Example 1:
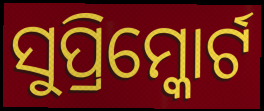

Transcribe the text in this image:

ସୁପ୍ରିମ୍କୋର୍ଟ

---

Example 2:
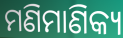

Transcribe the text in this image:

ମଣିମାଣିକ୍ୟ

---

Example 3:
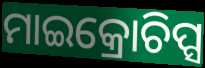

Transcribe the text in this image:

ମାଇକ୍ରୋଚିପ୍ସ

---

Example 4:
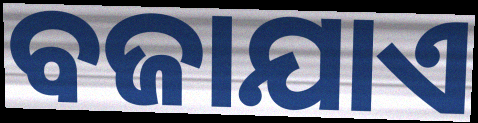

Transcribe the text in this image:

ବଜାଯାଏ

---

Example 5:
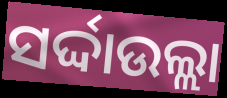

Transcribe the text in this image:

ସର୍ଦ୍ଦାଉଲ୍ଲା